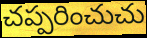
చప్పరించుచు